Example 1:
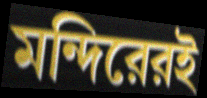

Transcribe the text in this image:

মন্দিরেরই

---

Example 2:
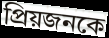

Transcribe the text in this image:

প্রিয়জনকে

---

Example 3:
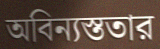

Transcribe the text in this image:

অবিন্যস্ততার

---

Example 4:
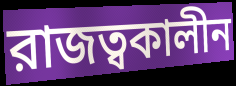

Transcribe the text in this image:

রাজত্বকালীন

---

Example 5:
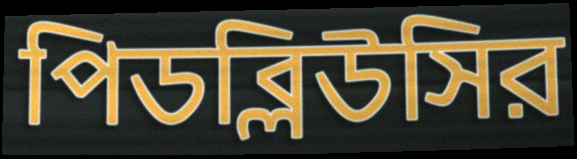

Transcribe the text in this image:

পিডব্লিউসির